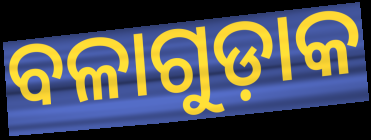
ବଳାଗୁଡ଼ାକ